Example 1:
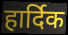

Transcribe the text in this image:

हार्दिक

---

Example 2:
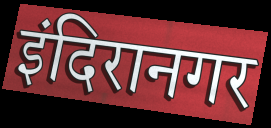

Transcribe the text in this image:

इंदिरानगर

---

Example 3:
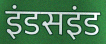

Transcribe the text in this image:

इंडसइंड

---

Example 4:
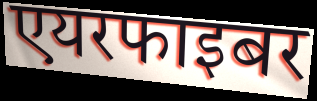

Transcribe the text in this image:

एयरफाइबर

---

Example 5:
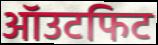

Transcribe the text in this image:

ऑउटफिट